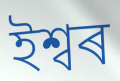
ইশ্বৰ